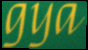
gya